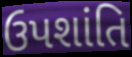
ઉપશાંતિ